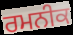
ਰਮਨੀਕ